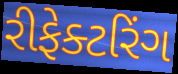
રીફેક્ટરિંગ